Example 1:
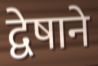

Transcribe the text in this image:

द्वेषाने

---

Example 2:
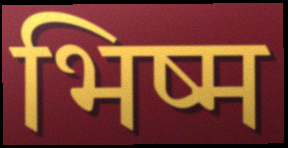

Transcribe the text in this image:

भिष्म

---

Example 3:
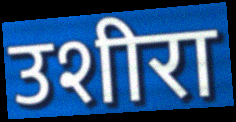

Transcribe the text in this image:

उशीरा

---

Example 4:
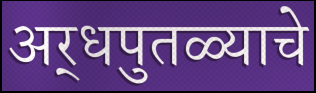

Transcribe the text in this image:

अर्धपुतळ्याचे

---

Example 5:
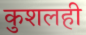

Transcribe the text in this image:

कुशलही